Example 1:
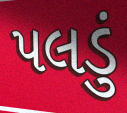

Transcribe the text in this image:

પલડું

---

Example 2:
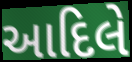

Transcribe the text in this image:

આદિલે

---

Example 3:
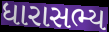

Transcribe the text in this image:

ધારાસભ્ય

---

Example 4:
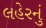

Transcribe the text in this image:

લહેરનું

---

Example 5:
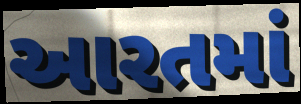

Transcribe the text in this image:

આરતમાં